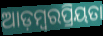
ଆଡ଼ମ୍ବରପ୍ରିୟତା